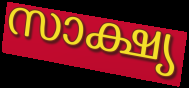
സാക്ഷ്യ